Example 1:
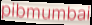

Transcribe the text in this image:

pibmumbai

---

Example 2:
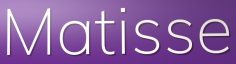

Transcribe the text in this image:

Matisse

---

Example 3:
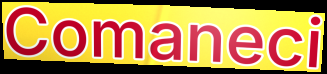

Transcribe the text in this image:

Comaneci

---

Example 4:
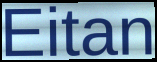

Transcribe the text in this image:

Eitan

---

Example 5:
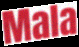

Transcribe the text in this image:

Mala